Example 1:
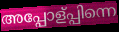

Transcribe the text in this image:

അപ്പോള്പ്പിന്നെ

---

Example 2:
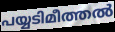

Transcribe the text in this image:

പയ്യടിമീത്തൽ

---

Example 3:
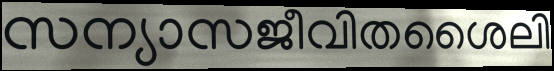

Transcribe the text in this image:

സന്യാസജീവിതശൈലി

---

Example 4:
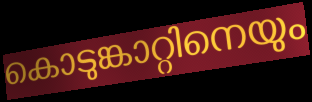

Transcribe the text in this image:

കൊടുങ്കാറ്റിനെയും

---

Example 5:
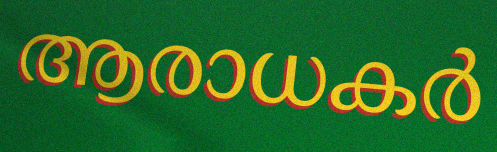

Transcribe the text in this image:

ആരാധകർ